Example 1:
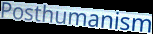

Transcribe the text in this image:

Posthumanism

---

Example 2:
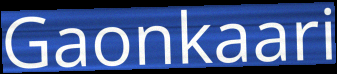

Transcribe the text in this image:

Gaonkaari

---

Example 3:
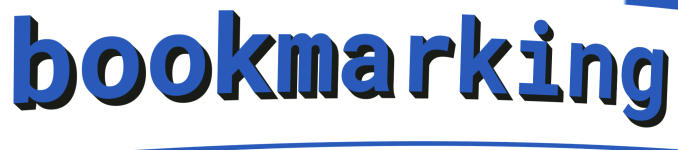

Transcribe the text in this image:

bookmarking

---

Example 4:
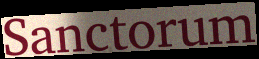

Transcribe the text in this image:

Sanctorum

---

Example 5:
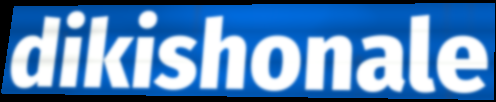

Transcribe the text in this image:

dikishonale